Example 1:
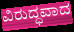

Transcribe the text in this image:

ವಿರುದ್ಧವಾದ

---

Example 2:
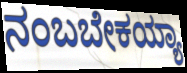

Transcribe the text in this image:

ನಂಬಬೇಕಯ್ಯಾ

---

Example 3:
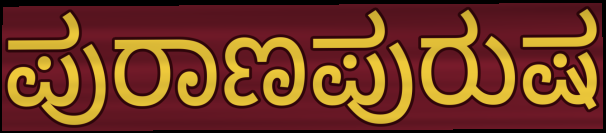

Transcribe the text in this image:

ಪುರಾಣಪುರುಷ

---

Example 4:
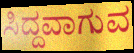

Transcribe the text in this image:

ಸಿದ್ದವಾಗುವ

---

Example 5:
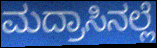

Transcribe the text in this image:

ಮದ್ರಾಸಿನಲ್ಲೆ